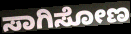
ಸಾಗಿಸೋಣ